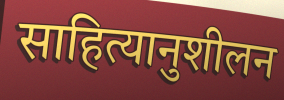
साहित्यानुशीलन